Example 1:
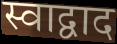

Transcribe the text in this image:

स्वाद्वाद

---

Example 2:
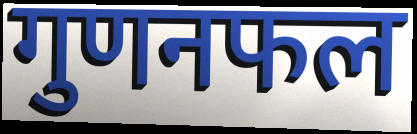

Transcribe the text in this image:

गुणनफल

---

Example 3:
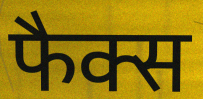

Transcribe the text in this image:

फैक्स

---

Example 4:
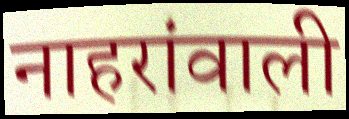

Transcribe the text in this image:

नाहरांवाली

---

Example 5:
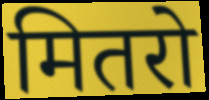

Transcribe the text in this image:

मितरो